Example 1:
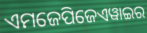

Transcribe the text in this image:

ଏମଜେପିଜେଏୱାଇର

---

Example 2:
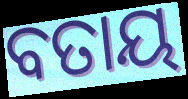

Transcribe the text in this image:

ବତାୟ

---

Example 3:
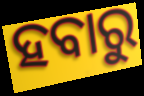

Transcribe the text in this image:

ହବାରୁ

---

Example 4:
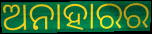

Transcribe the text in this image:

ଅନାହାରର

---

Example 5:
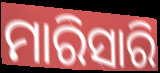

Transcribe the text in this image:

ମାରିସାରି